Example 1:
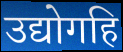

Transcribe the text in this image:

उद्योगहि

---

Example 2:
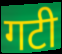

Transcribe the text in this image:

गटी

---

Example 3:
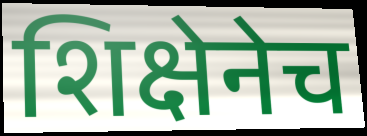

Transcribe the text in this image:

शिक्षेनेच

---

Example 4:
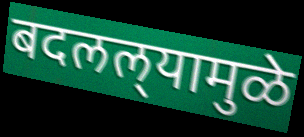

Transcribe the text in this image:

बदलल्यामुळे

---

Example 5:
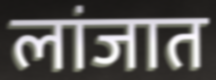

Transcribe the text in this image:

लांजात